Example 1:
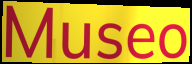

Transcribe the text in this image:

Museo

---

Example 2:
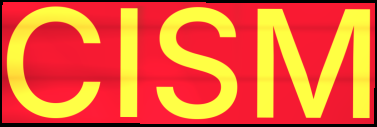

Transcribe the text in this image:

CISM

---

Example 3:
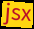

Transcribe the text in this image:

jsx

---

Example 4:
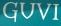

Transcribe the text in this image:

GUVI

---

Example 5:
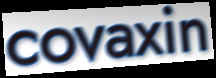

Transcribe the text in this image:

covaxin